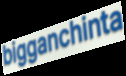
bigganchinta